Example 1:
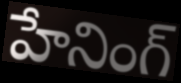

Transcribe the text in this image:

హేనింగ్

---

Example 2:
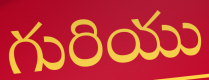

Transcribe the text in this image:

గురియు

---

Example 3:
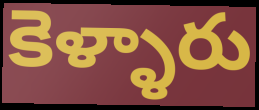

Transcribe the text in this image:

కెళ్ళారు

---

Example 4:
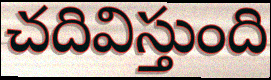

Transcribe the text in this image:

చదివిస్తుంది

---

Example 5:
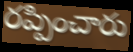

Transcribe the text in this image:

రప్పించారు